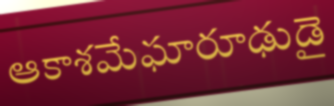
ఆకాశమేఘారూఢుడై